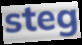
steg